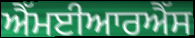
ਐੱਮਈਆਰਐੱਸ